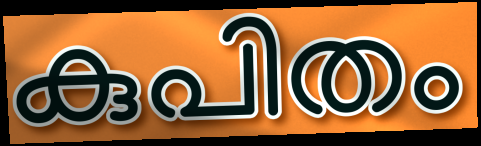
കുപിതം